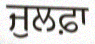
ਜੁਲਫ਼ਾ